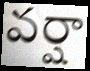
వర్షా